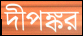
দীপঙ্কর